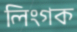
লিংগক